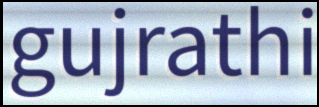
gujrathi